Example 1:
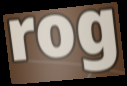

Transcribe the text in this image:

rog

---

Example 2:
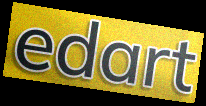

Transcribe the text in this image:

edart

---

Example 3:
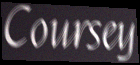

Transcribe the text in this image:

Coursey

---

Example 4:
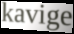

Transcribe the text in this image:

kavige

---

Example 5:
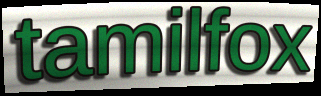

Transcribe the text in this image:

tamilfox